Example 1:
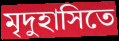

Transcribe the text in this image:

মৃদুহাসিতে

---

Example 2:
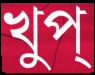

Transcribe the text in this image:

খুপ্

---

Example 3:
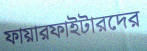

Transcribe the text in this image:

ফায়ারফাইটারদের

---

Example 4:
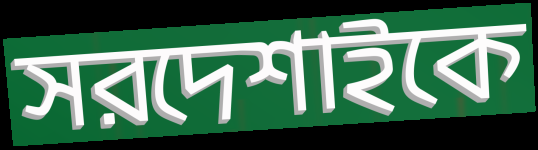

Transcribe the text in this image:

সরদেশাইকে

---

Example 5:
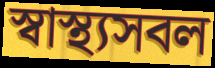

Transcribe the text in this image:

স্বাস্থ্যসবল